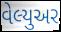
વેલ્યુઅર